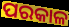
ପରକାଳ